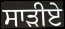
ਸਾੜੀਏ